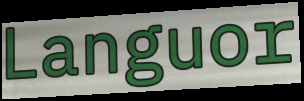
Languor